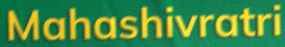
Mahashivratri